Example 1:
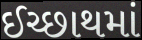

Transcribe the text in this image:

ઈચ્છાથમાં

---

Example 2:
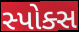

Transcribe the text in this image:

સ્પોક્સ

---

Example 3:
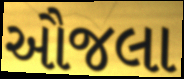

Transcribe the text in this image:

ઔજલા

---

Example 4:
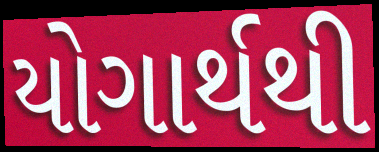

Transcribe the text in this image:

યોગાર્થથી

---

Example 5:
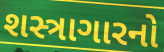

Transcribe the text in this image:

શસ્ત્રાગારનો